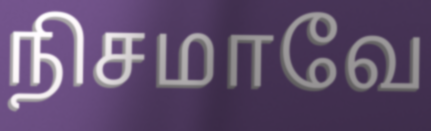
நிசமாவே